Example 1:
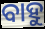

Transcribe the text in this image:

ବାହୁ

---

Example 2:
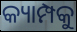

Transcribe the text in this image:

କ୍ୟାମ୍ପକୁ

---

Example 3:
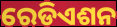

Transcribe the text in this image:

ରେଡିଏଶନ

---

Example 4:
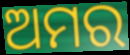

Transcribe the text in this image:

ଅମର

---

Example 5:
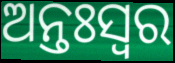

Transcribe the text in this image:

ଅନ୍ତଃସ୍ଵର